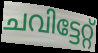
ചവിട്ടേറ്റ്